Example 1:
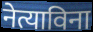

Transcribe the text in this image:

नेत्याविना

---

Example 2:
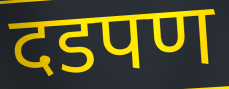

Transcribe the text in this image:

दडपण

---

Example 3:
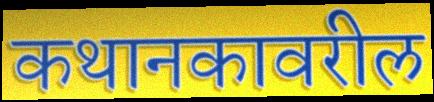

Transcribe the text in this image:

कथानकावरील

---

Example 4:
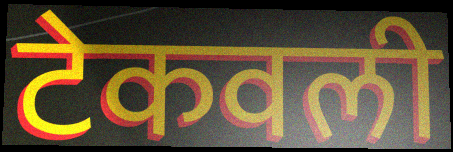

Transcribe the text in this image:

टेकवली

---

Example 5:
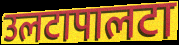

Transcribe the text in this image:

उलटापालटा